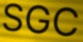
SGC